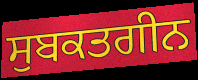
ਸੁਬਕਤਗੀਨ